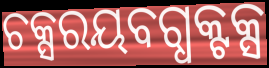
ଚକ୍ସରୟବଗ୍ଧକ୍ଟକ୍ସ